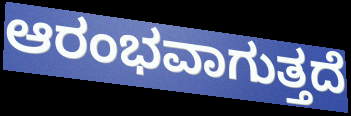
ಆರಂಭವಾಗುತ್ತದೆ